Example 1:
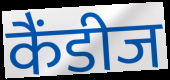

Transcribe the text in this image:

कैंडीज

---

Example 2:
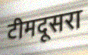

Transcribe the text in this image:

टीमदूसरा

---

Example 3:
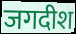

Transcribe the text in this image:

जगदीश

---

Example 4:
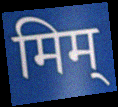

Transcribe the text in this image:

मिम्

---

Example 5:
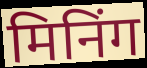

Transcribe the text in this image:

मिनिंग